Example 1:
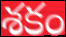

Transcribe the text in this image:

శకం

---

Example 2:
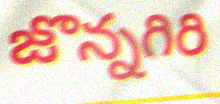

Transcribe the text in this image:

జొన్నగిరి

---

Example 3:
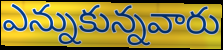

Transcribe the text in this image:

ఎన్నుకున్నవారు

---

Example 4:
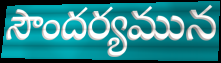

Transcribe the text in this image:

సౌందర్యమున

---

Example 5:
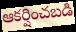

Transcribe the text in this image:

ఆకర్షించబడి